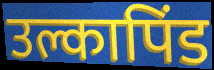
उल्‍कापिंड